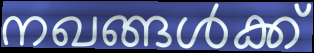
നഖങ്ങൾക്ക്